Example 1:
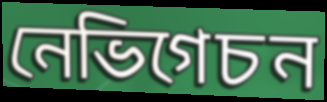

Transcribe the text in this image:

নেভিগেচন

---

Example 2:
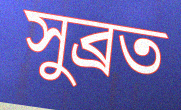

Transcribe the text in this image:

সুব্ৰত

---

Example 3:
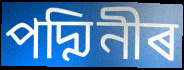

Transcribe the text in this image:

পদ্মিনীৰ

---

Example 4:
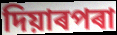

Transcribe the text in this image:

দিয়াৰপৰা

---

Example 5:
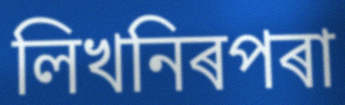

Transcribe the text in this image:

লিখনিৰপৰা